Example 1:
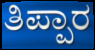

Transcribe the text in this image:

ತಿಪ್ಪಾರ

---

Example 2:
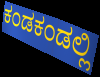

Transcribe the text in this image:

ಕಂಡಕಂಡಲ್ಲಿ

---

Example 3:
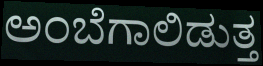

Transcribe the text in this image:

ಅಂಬೆಗಾಲಿಡುತ್ತ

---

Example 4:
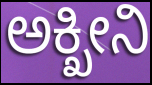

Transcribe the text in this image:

ಅಕ್ಖೀನಿ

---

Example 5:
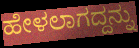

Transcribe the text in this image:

ಹೇಳಲಾಗದ್ದನ್ನು